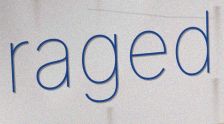
raged